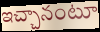
ఇచ్చానంటూ